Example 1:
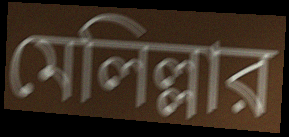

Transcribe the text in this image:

মেলিল্লার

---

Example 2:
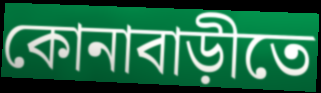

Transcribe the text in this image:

কোনাবাড়ীতে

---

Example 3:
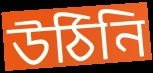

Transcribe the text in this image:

উঠিনি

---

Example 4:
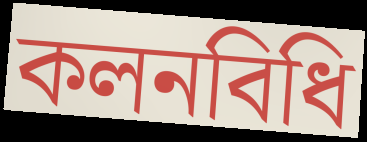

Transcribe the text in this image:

কলনবিধি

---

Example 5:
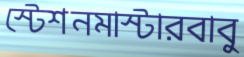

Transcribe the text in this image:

স্টেশনমাস্টারবাবু